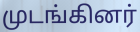
முடங்கினர்